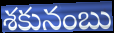
శకునంబు